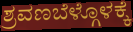
ಶ್ರವಣಬೆಳ್ಗೊಳಕ್ಕೆ